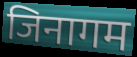
जिनागम